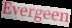
Evergeen